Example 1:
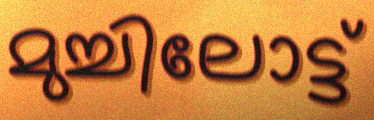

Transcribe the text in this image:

മുച്ചിലോട്ട്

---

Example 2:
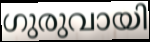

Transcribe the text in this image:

ഗുരുവായി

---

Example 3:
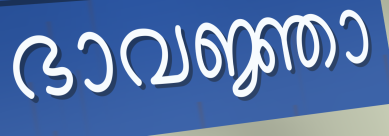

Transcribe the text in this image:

ഭാവജ്ഞാ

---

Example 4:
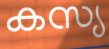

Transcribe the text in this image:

കസ്യ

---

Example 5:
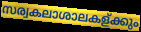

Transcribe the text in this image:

സര്വകലാശാലകള്ക്കും